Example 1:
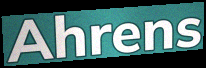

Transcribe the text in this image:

Ahrens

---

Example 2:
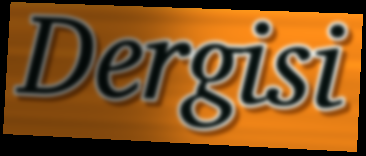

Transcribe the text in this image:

Dergisi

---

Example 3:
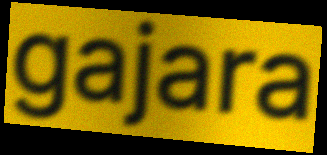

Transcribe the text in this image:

gajara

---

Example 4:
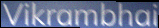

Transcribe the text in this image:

Vikrambhai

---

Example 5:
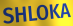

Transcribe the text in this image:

SHLOKA